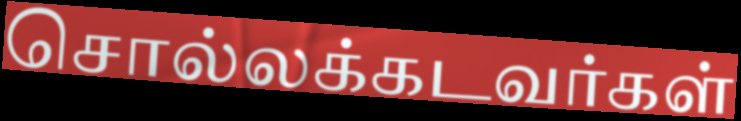
சொல்லக்கடவர்கள்